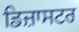
ਡਿਜ਼ਾਸਟਰ